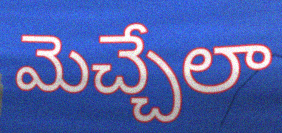
మెచ్చేలా